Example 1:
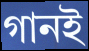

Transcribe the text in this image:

গানই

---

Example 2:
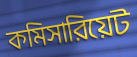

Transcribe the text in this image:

কমিসারিয়েট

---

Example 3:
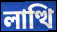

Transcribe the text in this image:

লাত্থি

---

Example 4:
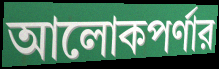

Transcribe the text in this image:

আলোকপর্ণার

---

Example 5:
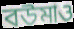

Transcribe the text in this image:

বউমাও